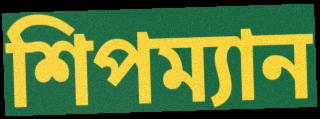
শিপম্যান